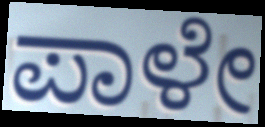
ಪಾಳೇ